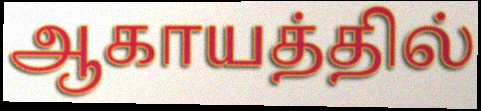
ஆகாயத்தில்